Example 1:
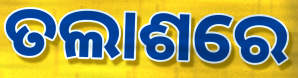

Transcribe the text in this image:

ତଲାଶରେ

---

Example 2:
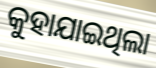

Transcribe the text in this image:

କୁହାଯାଇଥିଲା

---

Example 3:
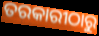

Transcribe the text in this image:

ତରକାରୀଠାରୁ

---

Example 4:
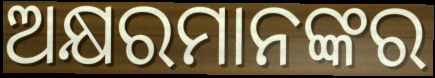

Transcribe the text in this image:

ଅକ୍ଷରମାନଙ୍କର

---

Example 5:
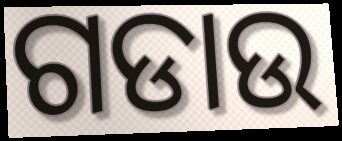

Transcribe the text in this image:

ଗଡାଉ